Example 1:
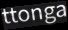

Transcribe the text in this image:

ttonga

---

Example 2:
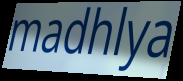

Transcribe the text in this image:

madhlya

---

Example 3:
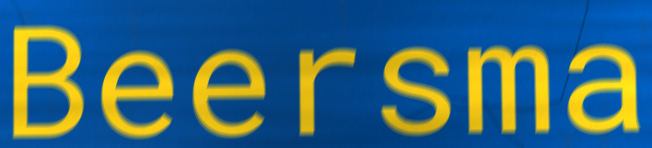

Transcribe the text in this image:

Beersma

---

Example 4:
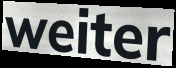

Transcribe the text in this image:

weiter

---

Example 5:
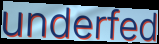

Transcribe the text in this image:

underfed